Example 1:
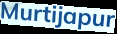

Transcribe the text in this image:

Murtijapur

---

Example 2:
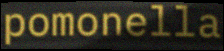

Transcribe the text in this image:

pomonella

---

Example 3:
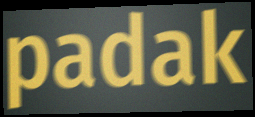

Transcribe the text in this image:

padak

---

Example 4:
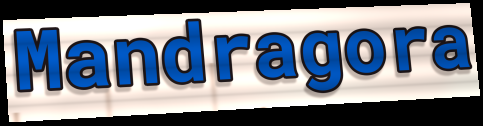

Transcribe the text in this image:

Mandragora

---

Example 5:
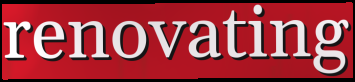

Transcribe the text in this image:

renovating